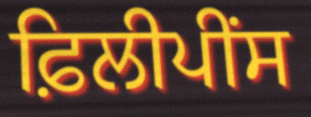
ਫ਼ਿਲੀਪੀਂਸ